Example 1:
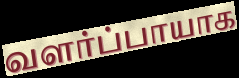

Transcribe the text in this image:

வளர்ப்பாயாக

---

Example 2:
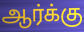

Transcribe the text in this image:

ஆர்க்கு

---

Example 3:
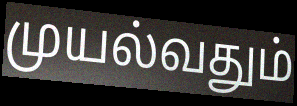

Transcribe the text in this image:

முயல்வதும்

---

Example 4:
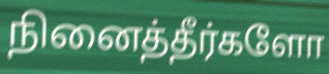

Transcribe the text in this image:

நினைத்தீர்களோ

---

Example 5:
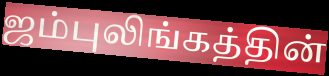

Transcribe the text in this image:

ஜம்புலிங்கத்தின்